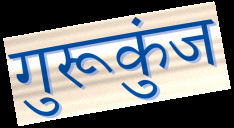
गुरूकुंज